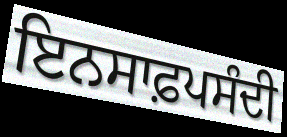
ਇਨਸਾਫ਼ਪਸੰਦੀ